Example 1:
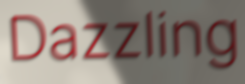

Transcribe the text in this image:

Dazzling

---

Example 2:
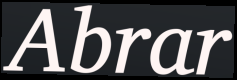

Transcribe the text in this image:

Abrar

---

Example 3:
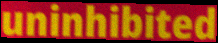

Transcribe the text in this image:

uninhibited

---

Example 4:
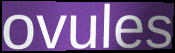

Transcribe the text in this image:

ovules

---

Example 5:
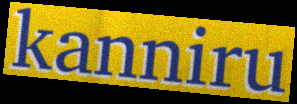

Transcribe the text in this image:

kanniru